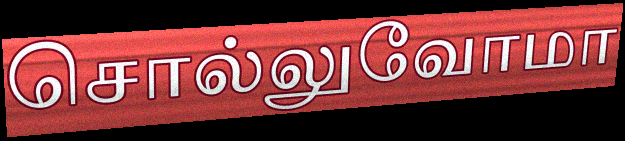
சொல்லுவோமா